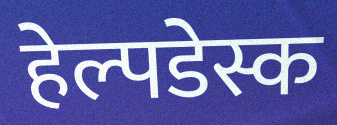
हेल्पडेस्क